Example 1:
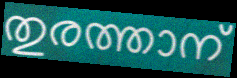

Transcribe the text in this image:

തുരത്താന്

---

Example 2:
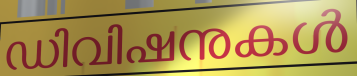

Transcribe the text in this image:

ഡിവിഷനുകൾ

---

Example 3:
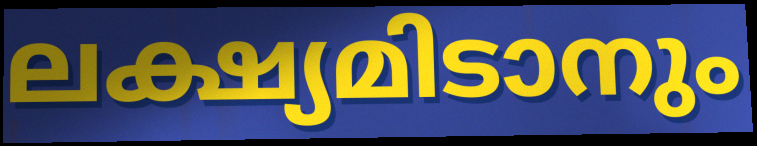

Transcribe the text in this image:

ലക്ഷ്യമിടാനും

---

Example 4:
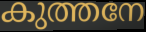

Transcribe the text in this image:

കുത്തനേ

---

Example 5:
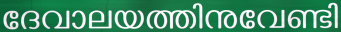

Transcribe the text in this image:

ദേവാലയത്തിനുവേണ്ടി